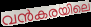
വൻകരയിലെ